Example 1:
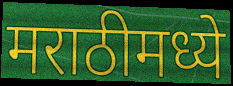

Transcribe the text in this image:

मराठीमध्ये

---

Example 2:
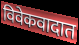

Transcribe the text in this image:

विवेकवादात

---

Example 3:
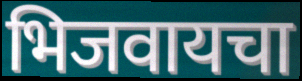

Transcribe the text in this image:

भिजवायचा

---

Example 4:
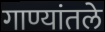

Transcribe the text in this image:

गाण्यांतले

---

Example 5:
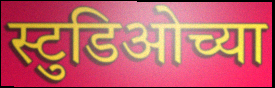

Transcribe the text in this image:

स्टुडिओच्या